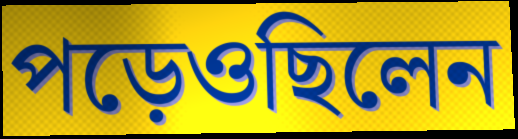
পড়েওছিলেন